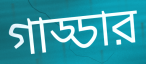
গাড্ডার